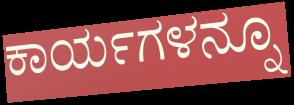
ಕಾರ್ಯಗಳನ್ನೂ